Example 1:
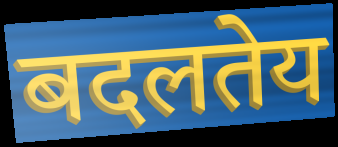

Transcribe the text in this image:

बदलतेय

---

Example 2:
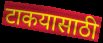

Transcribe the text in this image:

टाकयासाठी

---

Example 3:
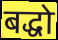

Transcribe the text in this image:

बद्धो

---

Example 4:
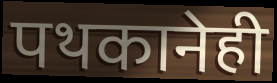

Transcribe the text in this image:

पथकानेही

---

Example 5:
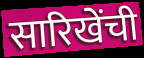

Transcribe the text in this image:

सारिखेंची